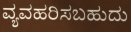
ವ್ಯವಹರಿಸಬಹುದು